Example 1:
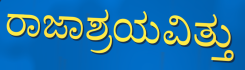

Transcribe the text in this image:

ರಾಜಾಶ್ರಯವಿತ್ತು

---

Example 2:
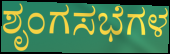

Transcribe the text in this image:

ಶೃಂಗಸಭೆಗಳ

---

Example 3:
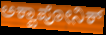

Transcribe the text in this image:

ಅಕ್ವಾಪೋನಿಕ್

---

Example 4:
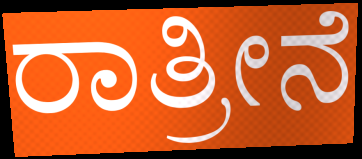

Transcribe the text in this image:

ರಾತ್ರೀನೆ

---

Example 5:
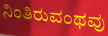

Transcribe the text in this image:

ನಿಂತಿರುವಂಥವು